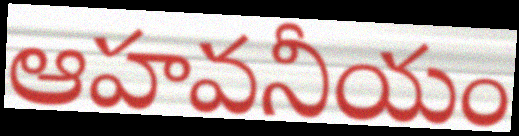
ఆహవనీయం